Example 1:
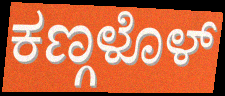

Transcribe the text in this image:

ಕಣ್ಗಳೊಳ್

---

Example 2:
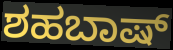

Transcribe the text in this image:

ಶಹಬಾಷ್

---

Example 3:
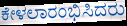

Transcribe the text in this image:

ಕೇಳಲಾರಂಭಿಸಿದರು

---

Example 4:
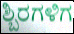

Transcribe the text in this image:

ಶ್ಬಿರಗಳಿಗ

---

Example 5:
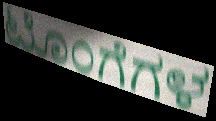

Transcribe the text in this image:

ಟೊಂಗೆಗಳ